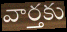
వార్తకు